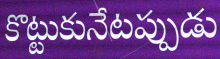
కొట్టుకునేటప్పుడు